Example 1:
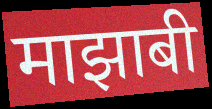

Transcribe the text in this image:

माझाबी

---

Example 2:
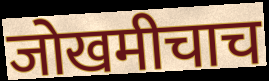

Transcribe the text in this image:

जोखमीचाच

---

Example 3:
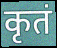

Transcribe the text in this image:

कृतं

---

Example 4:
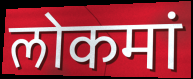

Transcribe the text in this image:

लोकमां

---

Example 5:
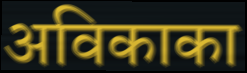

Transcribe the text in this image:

अविकाका